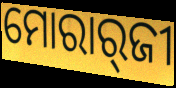
ମୋରାର୍‍ଜୀ